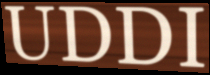
UDDI